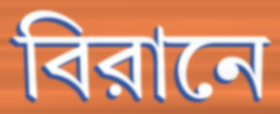
বিরানে